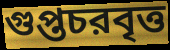
গুপ্তচরবৃত্ত